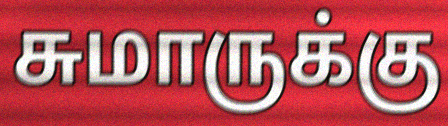
சுமாருக்கு